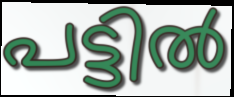
പട്ടിൽ